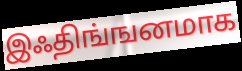
இஃதிங்ஙனமாக